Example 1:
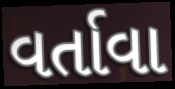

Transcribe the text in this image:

વર્તાવા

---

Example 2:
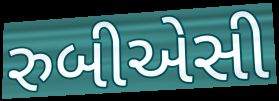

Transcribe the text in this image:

રુબીએસી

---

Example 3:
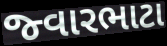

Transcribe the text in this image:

જ્વારભાટા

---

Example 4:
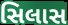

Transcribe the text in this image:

સિલાસ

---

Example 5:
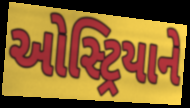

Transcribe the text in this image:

ઓસ્ટ્રિયાને